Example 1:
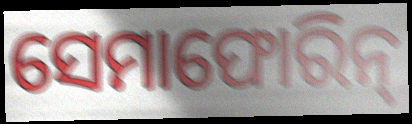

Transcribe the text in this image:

ସେମାଫୋରିନ୍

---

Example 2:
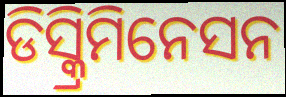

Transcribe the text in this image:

ଡିସ୍କ୍ରିମିନେସନ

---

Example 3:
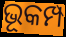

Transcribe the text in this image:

ଭୂକମ୍ପ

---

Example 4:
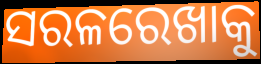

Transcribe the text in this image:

ସରଳରେଖାକୁ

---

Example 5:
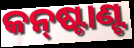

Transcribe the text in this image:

କନ୍‌ଷ୍ଟାଣ୍ଟ